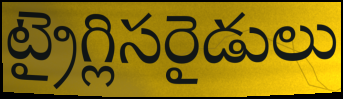
ట్రైగ్లిసరైడులు